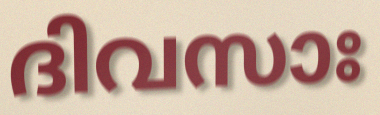
ദിവസാഃ